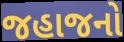
જહાજનો